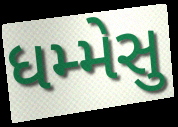
ધમ્મેસુ